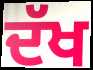
ਦੱਖ